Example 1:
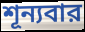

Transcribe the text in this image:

শূন্যবার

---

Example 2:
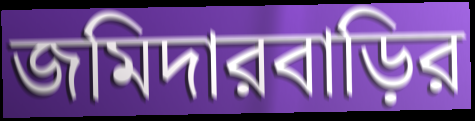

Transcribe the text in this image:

জমিদারবাড়ির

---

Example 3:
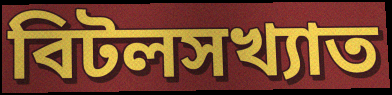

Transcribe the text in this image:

বিটলসখ্যাত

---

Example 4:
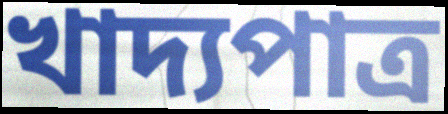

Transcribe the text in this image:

খাদ্যপাত্র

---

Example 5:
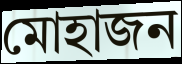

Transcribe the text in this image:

মোহাজন